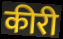
कीरी